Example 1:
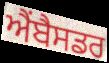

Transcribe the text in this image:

ਐਂਬੈਸਡਰ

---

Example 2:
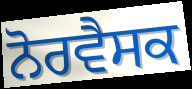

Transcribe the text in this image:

ਨੋਰਵੈਸਕ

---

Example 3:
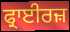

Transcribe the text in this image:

ਫ੍ਰਾਈਰਜ਼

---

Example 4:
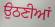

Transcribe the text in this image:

ਉਠਣੀਆਂ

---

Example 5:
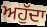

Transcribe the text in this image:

ਅਹੁੱਦਾ